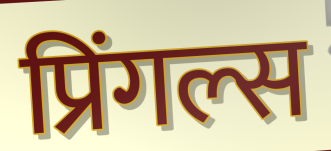
प्रिंगल्स